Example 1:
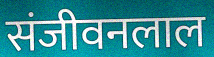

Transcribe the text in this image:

संजीवनलाल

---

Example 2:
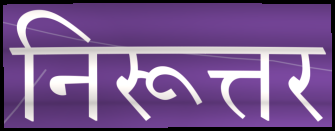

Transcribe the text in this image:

निरूत्तर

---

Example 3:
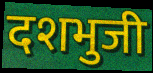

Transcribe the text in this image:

दशभुजी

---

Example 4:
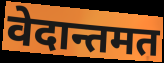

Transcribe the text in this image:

वेदान्तमत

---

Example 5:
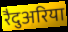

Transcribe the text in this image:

रैदुअरिया